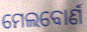
ମେଲବୋର୍ଣ